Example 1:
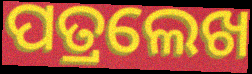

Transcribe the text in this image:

ପତ୍ରଲେଖ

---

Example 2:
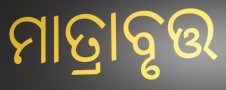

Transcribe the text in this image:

ମାତ୍ରାବୃତ୍ତ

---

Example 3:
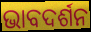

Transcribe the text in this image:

ଭାବଦର୍ଶନ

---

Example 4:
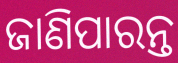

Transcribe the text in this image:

ଜାଣିପାରନ୍ତ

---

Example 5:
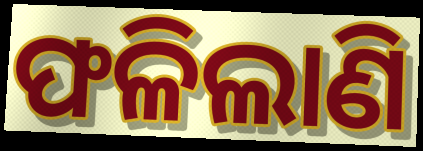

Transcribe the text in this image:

ଫଳିଲାଣି